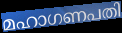
മഹാഗണപതി